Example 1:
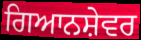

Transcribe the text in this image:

ਗਿਆਨਸ਼ੇਵਰ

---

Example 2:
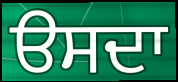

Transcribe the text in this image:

ੳਸਦਾ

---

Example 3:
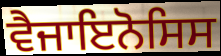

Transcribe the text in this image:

ਵੈਜਾਇਨੋਸਿਸ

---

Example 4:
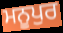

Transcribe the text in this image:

ਮਨੂਪੁਰ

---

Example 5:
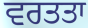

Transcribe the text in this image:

ਵਰਤਤਾ